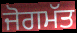
ਜੋਗਮੱਤ